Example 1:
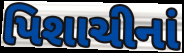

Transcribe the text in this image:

પિશાચીનાં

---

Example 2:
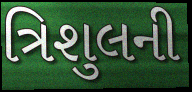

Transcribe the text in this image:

ત્રિશુલની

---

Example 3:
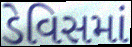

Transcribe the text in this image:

ડેવિસમાં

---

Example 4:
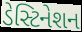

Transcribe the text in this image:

ડેસ્ટિનેશન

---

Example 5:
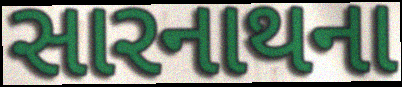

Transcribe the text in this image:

સારનાથના